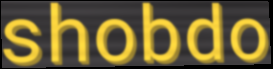
shobdo